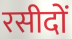
रसीदों